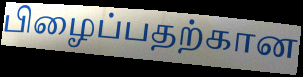
பிழைப்பதற்கான